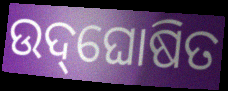
ଉଦ୍‌ଘୋଷିତ